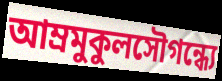
আম্রমুকুলসৌগন্ধ্যে